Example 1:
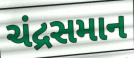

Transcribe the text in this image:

ચંદ્રસમાન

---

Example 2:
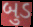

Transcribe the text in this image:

બુડ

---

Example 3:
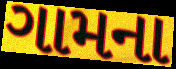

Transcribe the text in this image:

ગામના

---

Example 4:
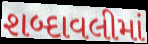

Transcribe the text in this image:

શબ્દાવલીમાં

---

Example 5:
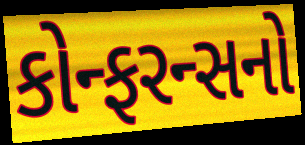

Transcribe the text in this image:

કોન્ફરન્સનો